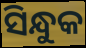
ସିନ୍ଧୁକ